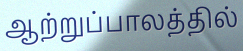
ஆற்றுப்பாலத்தில்